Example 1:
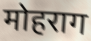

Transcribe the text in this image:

मोहराग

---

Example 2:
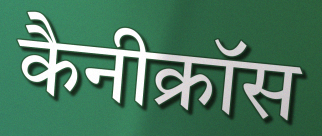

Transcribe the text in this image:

कैनीक्रॉस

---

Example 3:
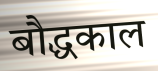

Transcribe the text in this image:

बौद्धकाल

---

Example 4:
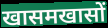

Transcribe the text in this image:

खासमखासों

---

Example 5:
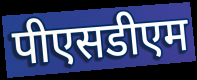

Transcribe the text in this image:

पीएसडीएम